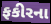
ફકીરના